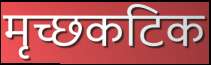
मृच्छकटिक